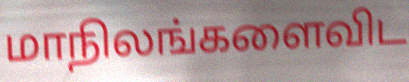
மாநிலங்களைவிட